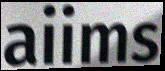
aiims